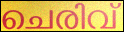
ചെരിവ്